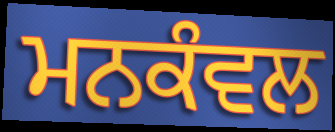
ਮਨਕੰਵਲ